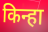
किन्हा